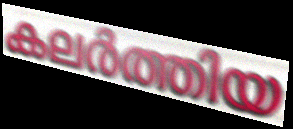
കലർത്തിയ